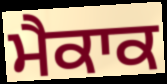
ਮੈਕਾਕ